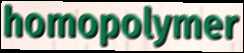
homopolymer